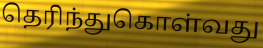
தெரிந்துகொள்வது